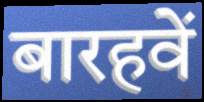
बारहवें